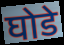
घोडे